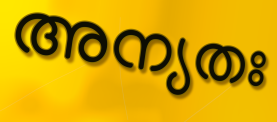
അന്യതഃ